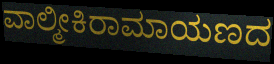
ವಾಲ್ಮೀಕಿರಾಮಾಯಣದ